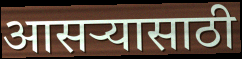
आसऱ्यासाठी